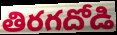
తిరగదోడి